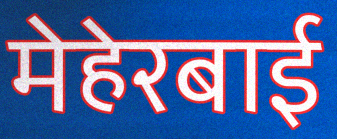
मेहेरबाई